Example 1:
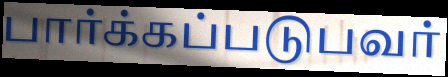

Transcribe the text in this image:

பார்க்கப்படுபவர்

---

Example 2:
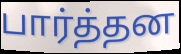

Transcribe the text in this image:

பார்த்தன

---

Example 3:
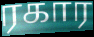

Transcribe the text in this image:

ரகார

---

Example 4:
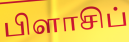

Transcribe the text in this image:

பிளாசிப்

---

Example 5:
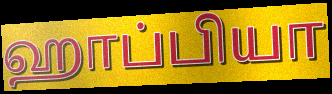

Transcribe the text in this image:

ஹாப்பியா